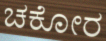
ಚಕೋರ